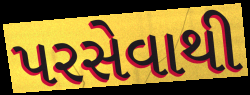
પરસેવાથી